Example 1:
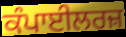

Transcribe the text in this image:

ਕੰਪਾਈਲਰਜ਼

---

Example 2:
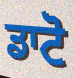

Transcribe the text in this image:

ਡਾਟੋ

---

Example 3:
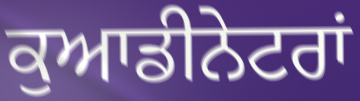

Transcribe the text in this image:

ਕੁਆਡੀਨੇਟਰਾਂ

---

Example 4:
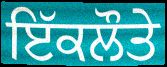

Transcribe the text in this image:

ਇੱਕਲੌਤੇ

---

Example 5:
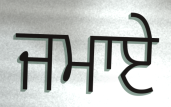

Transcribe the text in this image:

ਜਮਾਏ